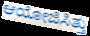
ಆಯೋಜಿಸಿತ್ತು